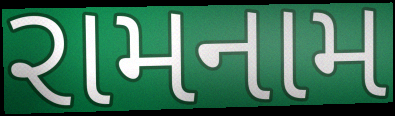
રામનામ